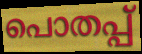
പൊതപ്പ്